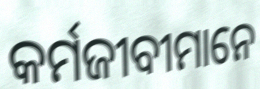
କର୍ମଜୀବୀମାନେ